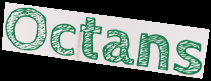
Octans